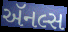
ઍનલ્સ